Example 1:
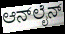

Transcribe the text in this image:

ಆನ್‌ಲೈನ್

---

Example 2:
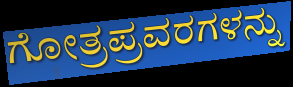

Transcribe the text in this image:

ಗೋತ್ರಪ್ರವರಗಳನ್ನು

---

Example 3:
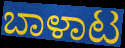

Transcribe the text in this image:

ಬಾಳಾಟ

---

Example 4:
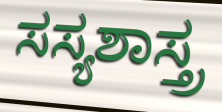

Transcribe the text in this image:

ಸಸ್ಯಶಾಸ್ತ್ರ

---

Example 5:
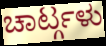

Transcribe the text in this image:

ಚಾರ್ಟ್ಗಳು